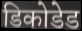
डिकोडेड